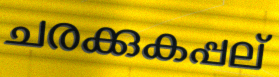
ചരക്കുകപ്പല്